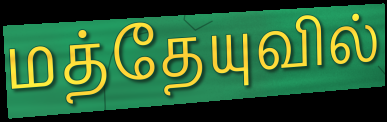
மத்தேயுவில்